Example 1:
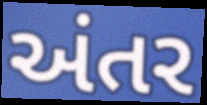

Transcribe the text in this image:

અંતર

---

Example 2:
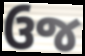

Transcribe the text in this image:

ઉજ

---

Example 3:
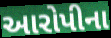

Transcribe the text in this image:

આરોપીના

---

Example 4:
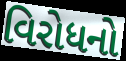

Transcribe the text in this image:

વિરોધનો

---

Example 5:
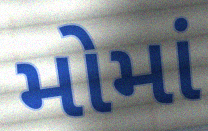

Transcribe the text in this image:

મોમાં